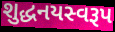
શુદ્ધનયસ્વરૂપ